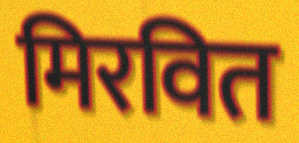
मिरवित